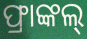
ଫ୍ରାଙ୍କଲ୍